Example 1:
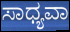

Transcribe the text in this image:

ಸಾಧ್ಯವಾ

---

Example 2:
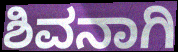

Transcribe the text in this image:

ಶಿವನಾಗಿ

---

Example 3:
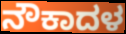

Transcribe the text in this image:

ನೌಕಾದಳ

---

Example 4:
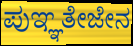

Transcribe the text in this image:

ಪುಞ್ಞತೇಜೇನ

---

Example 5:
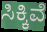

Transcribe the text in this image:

ಸಿಕ್ಕಿವೆ